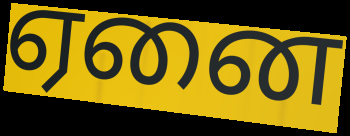
ஏனை